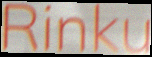
Rinku